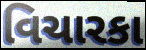
વિચારકા